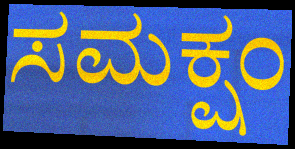
ಸಮಕ್ಷಂ